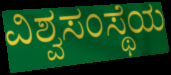
ವಿಶ್ವಸಂಸ್ಥೆಯ